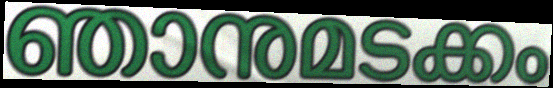
ഞാനുമടക്കം